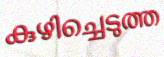
കുഴിച്ചെടുത്ത